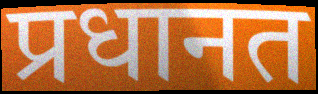
प्रधानत